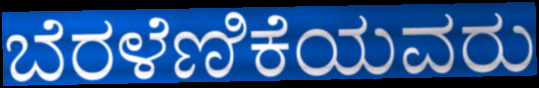
ಬೆರಳೆಣಿಕೆಯವರು